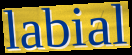
labial